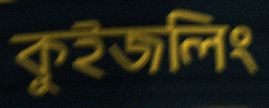
কুইজলিং